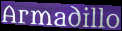
Armadillo